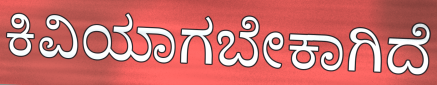
ಕಿವಿಯಾಗಬೇಕಾಗಿದೆ